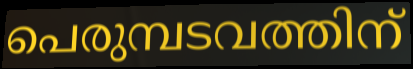
പെരുമ്പടവത്തിന്